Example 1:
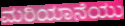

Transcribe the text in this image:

ಮರಿಯಾನೆಯು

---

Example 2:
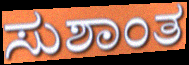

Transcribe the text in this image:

ಸುಶಾಂತ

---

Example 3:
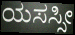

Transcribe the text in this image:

ಯಸಸ್ಸೀ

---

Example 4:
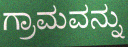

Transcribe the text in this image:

ಗ್ರಾಮವನ್ನು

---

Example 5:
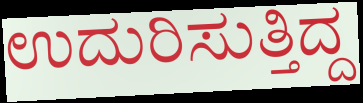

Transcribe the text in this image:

ಉದುರಿಸುತ್ತಿದ್ದ